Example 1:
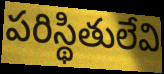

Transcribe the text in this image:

పరిస్థితులేవి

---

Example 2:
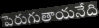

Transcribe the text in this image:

పెరుగుతాయనేది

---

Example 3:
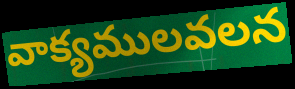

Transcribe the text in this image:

వాక్యములవలన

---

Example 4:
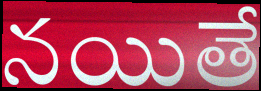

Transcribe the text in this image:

నయితే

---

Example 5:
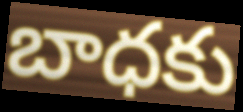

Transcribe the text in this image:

బాధకు